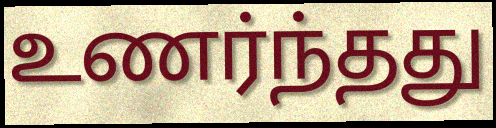
உணர்ந்தது